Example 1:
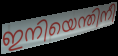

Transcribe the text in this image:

ഇനിയെന്തിനീ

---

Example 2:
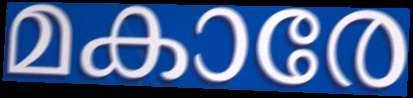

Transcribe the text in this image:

മകാരേ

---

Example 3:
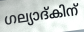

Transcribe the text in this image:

ഗല്യാദ്കിന്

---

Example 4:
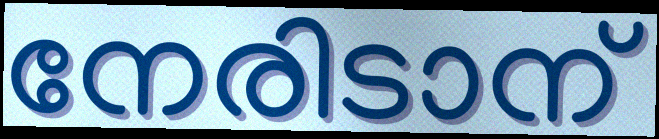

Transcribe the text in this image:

നേരിടാന്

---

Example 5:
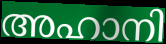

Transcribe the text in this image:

അഹാനി